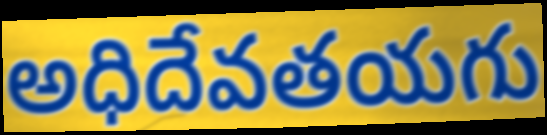
అధిదేవతయగు